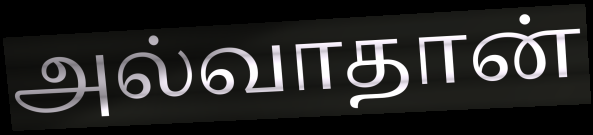
அல்வாதான்